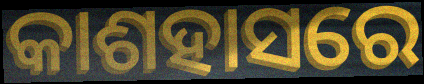
କାଶହାସରେ